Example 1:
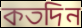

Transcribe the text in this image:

কতদিন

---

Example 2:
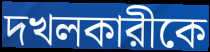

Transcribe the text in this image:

দখলকারীকে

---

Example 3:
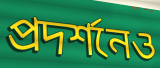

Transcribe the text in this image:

প্রদর্শনেও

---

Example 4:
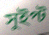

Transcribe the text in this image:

সুইপ্ট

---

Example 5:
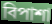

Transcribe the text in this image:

বিপাশা